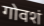
गोवशं